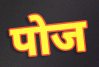
पोज